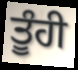
ਤੂੰਹੀ